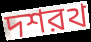
দশরথ